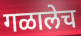
गळालेच